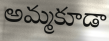
అమ్మకూడా